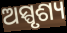
ଅସ୍ପୃଶ୍ୟ